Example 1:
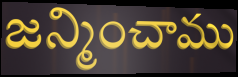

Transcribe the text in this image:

జన్మించాము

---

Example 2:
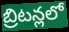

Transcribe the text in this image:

బ్రిటన్లలో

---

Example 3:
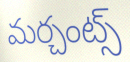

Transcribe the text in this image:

మర్చంట్స్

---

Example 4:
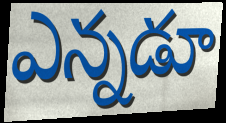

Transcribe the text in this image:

ఎన్నడూ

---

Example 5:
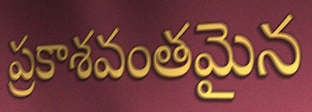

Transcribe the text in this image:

ప్రకాశవంతమైన